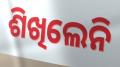
ଶିଖିଲେନି